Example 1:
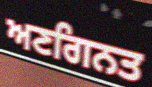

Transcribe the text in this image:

ਅਣਗਿਨਤ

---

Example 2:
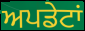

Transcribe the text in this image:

ਅਪਡੇਟਾਂ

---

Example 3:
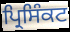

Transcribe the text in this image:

ਪ੍ਰਿਸਿੰਕਟ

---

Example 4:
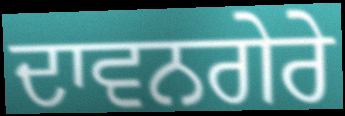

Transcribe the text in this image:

ਦਾਵਨਗੇਰੇ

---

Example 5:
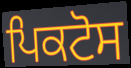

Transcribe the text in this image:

ਪਿਕਟੋਸ